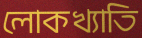
লোকখ্যাতি